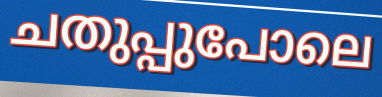
ചതുപ്പുപോലെ